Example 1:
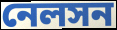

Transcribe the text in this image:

নেলসন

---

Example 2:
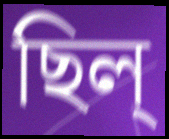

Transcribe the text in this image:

ছিল্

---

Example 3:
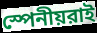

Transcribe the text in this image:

স্পেনীয়রাই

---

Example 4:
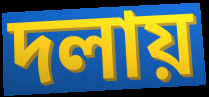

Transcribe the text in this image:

দলায়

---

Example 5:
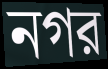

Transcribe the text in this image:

নগর